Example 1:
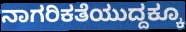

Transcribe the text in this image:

ನಾಗರಿಕತೆಯುದ್ದಕ್ಕೂ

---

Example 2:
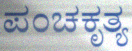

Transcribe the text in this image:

ಪಂಚಕೃತ್ಯ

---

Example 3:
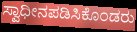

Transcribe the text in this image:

ಸ್ವಾಧೀನಪಡಿಸಿಕೊಂಡರು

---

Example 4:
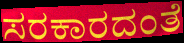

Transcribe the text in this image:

ಸರಕಾರದಂತೆ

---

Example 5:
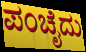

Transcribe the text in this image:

ಪಂಚೈದು